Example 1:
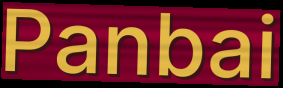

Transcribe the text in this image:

Panbai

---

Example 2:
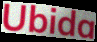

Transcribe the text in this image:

Ubida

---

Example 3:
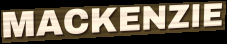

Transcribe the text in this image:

MACKENZIE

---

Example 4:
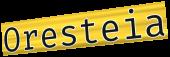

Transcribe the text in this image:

Oresteia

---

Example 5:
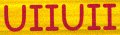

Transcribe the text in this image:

UIIUII